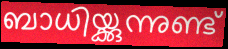
ബാധിയ്ക്കുന്നുണ്ട്